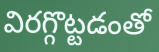
విరగ్గొట్టడంతో